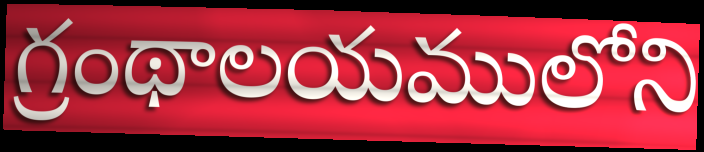
గ్రంథాలయములోని